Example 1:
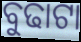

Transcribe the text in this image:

ବୁଢାଟା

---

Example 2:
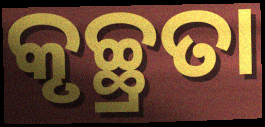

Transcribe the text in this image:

କୃଚ୍ଛ୍ରତା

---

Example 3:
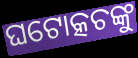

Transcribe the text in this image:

ଘଟୋତ୍କଚଙ୍କୁ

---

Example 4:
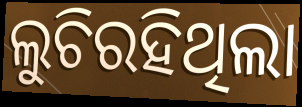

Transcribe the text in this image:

ଲୁଚିରହିଥିଲା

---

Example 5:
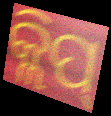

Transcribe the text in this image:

କ୍ଲିପ୍